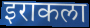
इराकला